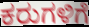
ಕರುಗಳಿಗೆ